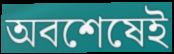
অবশেষেই